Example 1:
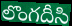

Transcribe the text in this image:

లొంగదీసి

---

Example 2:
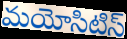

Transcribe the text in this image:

మయోసిటిస్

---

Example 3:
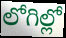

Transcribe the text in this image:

లోగిల్లో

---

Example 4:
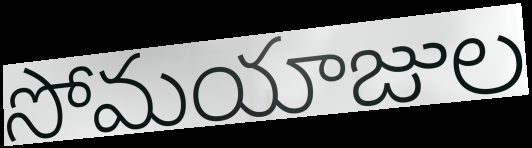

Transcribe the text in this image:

సోమయాజుల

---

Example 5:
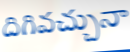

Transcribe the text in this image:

దిగివచ్చునా